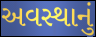
અવસ્થાનું